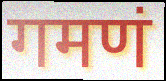
गमणं